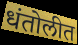
धंतोलीत